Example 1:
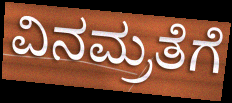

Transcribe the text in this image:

ವಿನಮ್ರತೆಗೆ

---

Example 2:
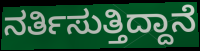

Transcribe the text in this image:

ನರ್ತಿಸುತ್ತಿದ್ದಾನೆ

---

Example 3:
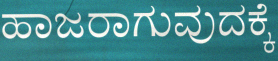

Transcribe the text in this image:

ಹಾಜರಾಗುವುದಕ್ಕೆ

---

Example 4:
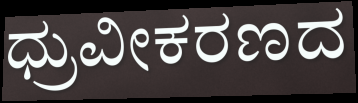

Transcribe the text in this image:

ಧ್ರುವೀಕರಣದ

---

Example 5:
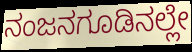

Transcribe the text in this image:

ನಂಜನಗೂಡಿನಲ್ಲೇ